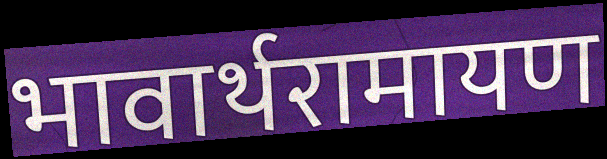
भावार्थरामायण